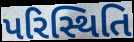
પરિસ્થિતિ